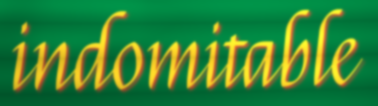
indomitable